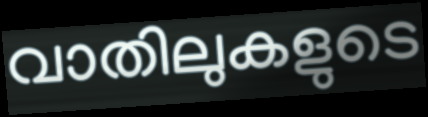
വാതിലുകളുടെ